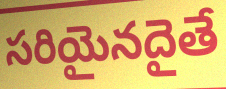
సరియైనదైతే